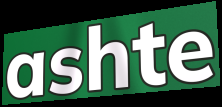
ashte